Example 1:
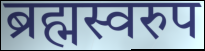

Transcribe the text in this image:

ब्रह्मस्वरुप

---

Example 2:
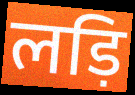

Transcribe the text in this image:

लड़ि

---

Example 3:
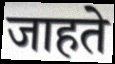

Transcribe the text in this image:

जाहते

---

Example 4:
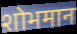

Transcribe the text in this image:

शोभमान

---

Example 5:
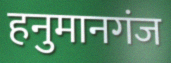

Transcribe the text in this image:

हनुमानगंज